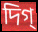
দিগ্